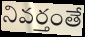
నివర్తంతే